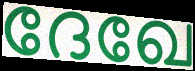
ദേഖേ